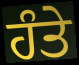
ਹੰਤੇ